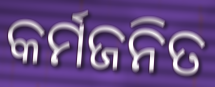
କର୍ମଜନିତ